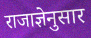
राजाज्ञेनुसार